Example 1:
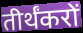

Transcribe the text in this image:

तीर्थंकरों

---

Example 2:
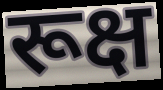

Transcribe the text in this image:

रूक्ष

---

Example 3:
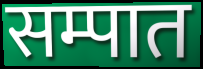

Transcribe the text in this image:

सम्पात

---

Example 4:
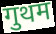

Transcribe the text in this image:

गुथम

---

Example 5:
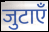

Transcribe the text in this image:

जुटाएँ